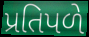
પ્રતિપળે